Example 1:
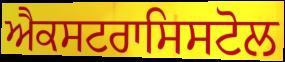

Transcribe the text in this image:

ਐਕਸਟਰਾਸਿਸਟੋਲ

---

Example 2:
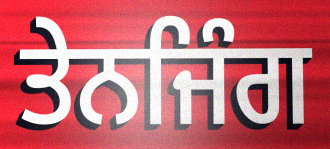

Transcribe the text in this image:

ਤੇਨਜਿੰਗ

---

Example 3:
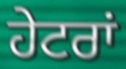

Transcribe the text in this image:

ਹੇਟਰਾਂ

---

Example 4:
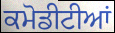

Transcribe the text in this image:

ਕਮੋਡੀਟੀਆਂ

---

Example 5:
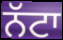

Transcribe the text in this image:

ਨੱਟਾ